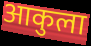
आकुला